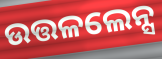
ଉତ୍ତଳଲେନ୍ସ